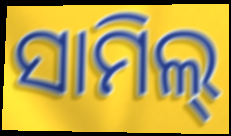
ସାମିଲ୍